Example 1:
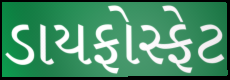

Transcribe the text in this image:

ડાયફોસ્ફેટ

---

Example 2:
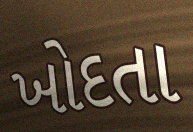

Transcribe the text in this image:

ખોદતા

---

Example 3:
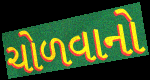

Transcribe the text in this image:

ચોળવાનો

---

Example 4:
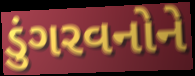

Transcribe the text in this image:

ડુંગરવનોને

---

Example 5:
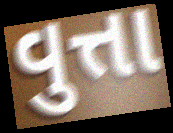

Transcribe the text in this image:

વુત્તા